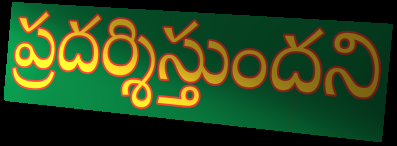
ప్రదర్శిస్తుందని